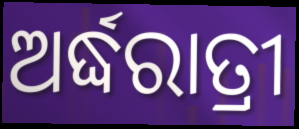
ଅର୍ଦ୍ଧରାତ୍ରୀ